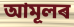
আমূলৰ